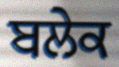
ਬਲੇਕ